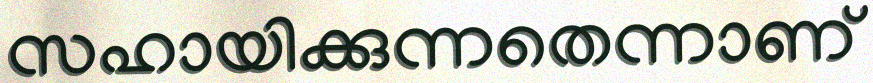
സഹായിക്കുന്നതെന്നാണ്